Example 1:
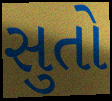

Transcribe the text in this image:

સુતો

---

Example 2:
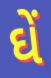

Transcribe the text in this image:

ઘેં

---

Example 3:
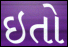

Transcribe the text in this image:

ઇતો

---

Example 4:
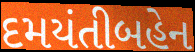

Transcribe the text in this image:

દમયંતીબહેન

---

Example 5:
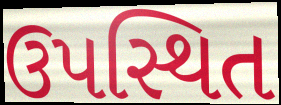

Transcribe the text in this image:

ઉપસ્થિત